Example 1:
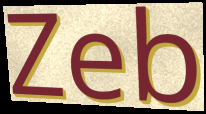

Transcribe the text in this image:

Zeb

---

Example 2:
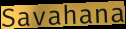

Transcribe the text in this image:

Savahana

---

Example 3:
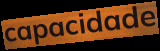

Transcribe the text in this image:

capacidade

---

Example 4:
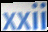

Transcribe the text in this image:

xxii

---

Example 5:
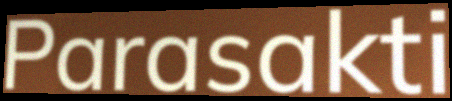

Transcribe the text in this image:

Parasakti